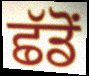
ਛੱਡੋਂ